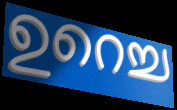
ഉറെച്ച